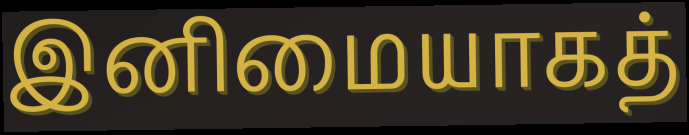
இனிமையாகத்